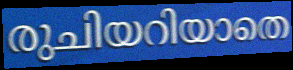
രുചിയറിയാതെ